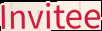
Invitee